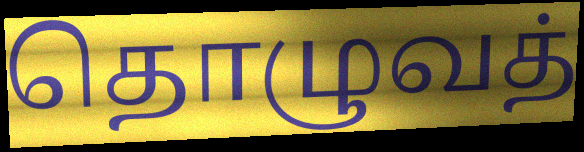
தொழுவத்